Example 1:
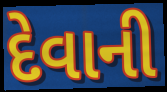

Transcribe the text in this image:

દેવાની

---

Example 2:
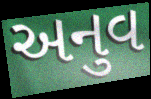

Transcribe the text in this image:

અનુવ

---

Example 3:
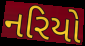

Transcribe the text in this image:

નરિયો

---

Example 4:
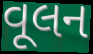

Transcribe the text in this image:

વૂલન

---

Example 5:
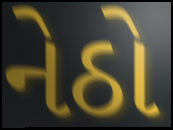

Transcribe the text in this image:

નેઠો